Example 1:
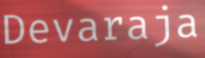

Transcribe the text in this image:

Devaraja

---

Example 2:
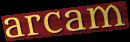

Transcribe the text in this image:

arcam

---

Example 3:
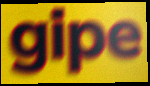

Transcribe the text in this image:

gipe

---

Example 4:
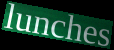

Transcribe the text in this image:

lunches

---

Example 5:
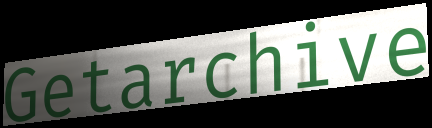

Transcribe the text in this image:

Getarchive